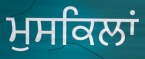
ਮੁਸਕਿਲਾਂ